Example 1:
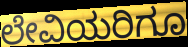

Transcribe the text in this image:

ಲೇವಿಯರಿಗೂ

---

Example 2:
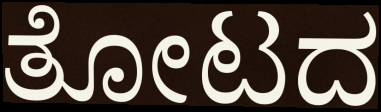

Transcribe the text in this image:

ತೋಟದ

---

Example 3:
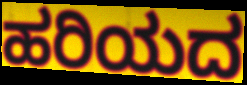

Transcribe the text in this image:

ಹರಿಯದ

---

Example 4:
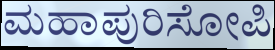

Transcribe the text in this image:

ಮಹಾಪುರಿಸೋಪಿ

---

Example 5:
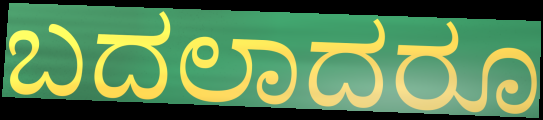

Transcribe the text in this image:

ಬದಲಾದರೂ